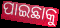
ପାଇଛାକୁ